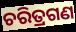
ଚରିତ୍ରଗଣ